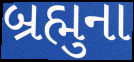
બ્રહ્મુના